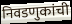
निवडणुकांची